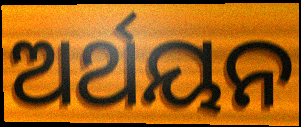
ଅର୍ଥୟନ